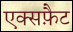
एक्सफ़ैट